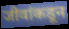
जीवांकडून